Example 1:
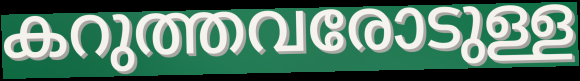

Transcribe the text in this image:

കറുത്തവരോടുള്ള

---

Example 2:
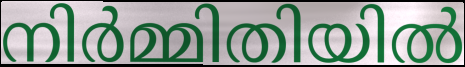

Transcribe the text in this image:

നിർമ്മിതിയിൽ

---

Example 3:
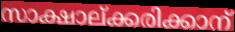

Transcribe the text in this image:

സാക്ഷാല്ക്കരിക്കാന്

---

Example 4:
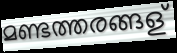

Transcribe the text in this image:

മണ്ടത്തരങ്ങള്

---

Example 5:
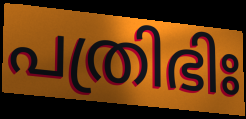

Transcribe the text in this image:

പത്രിഭിഃ